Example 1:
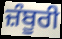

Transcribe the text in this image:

ਜ਼ੰਬੂਰੀ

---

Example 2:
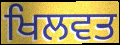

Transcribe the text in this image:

ਖਿਲਵਤ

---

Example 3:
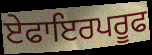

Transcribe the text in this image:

ਏਫਾਇਰਪਰੂਫ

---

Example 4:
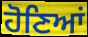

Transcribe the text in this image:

ਹੋਣਿਆਂ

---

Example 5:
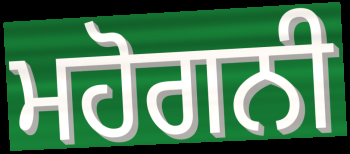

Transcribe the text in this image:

ਮਹੋਗਨੀ